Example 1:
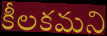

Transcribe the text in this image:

కీలకమని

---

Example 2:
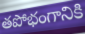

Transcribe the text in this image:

తపోభంగానికి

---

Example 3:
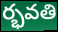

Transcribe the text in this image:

ర్భవతి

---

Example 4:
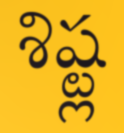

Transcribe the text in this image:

శిష్ట్ల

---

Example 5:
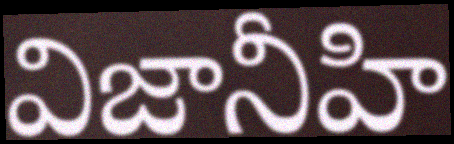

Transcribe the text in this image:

విజానీహి